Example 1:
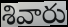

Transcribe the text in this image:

శివారు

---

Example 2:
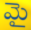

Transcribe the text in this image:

మై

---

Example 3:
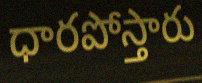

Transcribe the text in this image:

ధారపోస్తారు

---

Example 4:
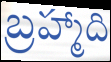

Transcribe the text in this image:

బ్రహ్మాది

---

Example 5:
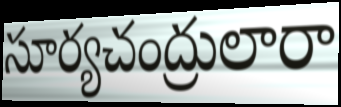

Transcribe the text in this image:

సూర్యచంద్రులారా